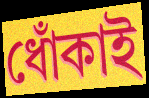
ধোঁকাই